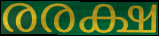
രരക്ഷ